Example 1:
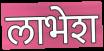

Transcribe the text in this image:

लाभेश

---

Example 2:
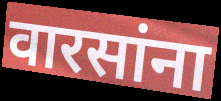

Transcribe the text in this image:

वारसांना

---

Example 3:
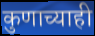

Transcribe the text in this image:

कुणाच्याही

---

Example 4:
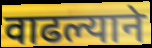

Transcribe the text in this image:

वाढल्याने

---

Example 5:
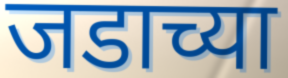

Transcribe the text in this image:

जडाच्या